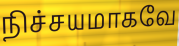
நிச்சயமாகவே